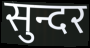
सुन्दर